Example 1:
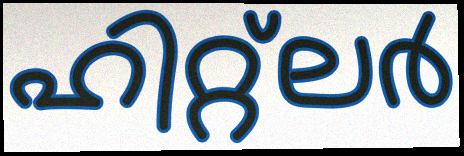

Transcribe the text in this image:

ഹിറ്റ്ലർ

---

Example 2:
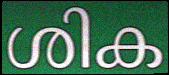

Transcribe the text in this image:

ശിക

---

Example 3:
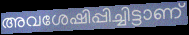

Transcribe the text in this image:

അവശേഷിപ്പിച്ചിട്ടാണ്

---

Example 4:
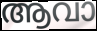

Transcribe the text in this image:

ആവാ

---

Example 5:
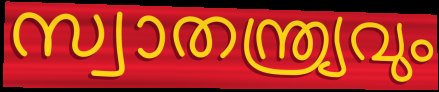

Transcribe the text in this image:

സ്വാതന്ത്ര്യവും